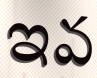
ఇవ